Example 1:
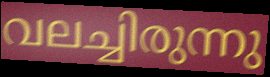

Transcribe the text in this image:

വലച്ചിരുന്നു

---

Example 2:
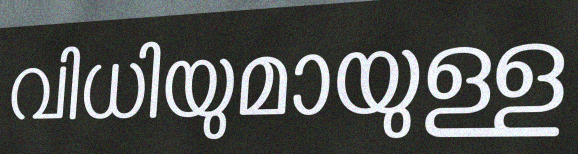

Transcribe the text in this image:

വിധിയുമായുള്ള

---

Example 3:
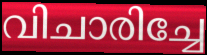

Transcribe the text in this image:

വിചാരിച്ചേ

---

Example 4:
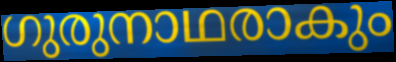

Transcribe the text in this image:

ഗുരുനാഥരാകും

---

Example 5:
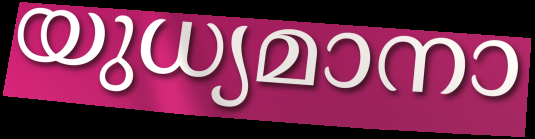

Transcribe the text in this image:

യുധ്യമാനാ